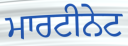
ਮਾਰਟੀਨੇਟ